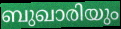
ബുഖാരിയും